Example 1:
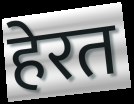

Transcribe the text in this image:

हेरत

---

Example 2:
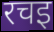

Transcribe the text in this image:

रचइ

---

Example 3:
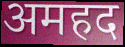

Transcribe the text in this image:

अमहद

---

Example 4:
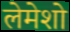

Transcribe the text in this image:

लेमेशो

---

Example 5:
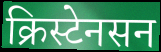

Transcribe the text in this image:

क्रिस्टेनसन